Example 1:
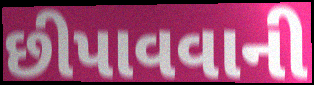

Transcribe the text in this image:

છીપાવવાની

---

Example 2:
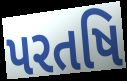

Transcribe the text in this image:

પરતષિ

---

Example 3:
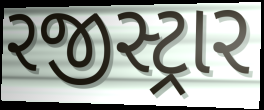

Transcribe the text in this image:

રજીસ્ટ્રાર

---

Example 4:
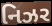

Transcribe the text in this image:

નિઝર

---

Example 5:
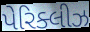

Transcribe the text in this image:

પેરિક્લીઝ